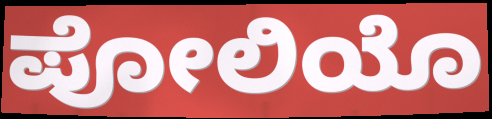
ಪೋಲಿಯೊ